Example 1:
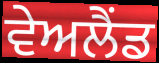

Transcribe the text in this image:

ਵੇਅਲੈਂਡ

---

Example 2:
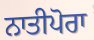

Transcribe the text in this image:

ਨਾਤੀਪੋਰਾ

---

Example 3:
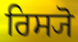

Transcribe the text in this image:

ਰਿਸ੍ਯੋ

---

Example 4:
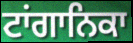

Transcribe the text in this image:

ਟਾਂਗਾਨਿਕਾ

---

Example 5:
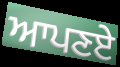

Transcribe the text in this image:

ਆਪਣਏ